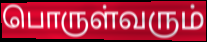
பொருள்வரும்